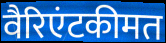
वैरिएंटकीमत